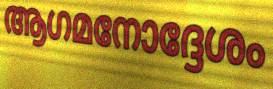
ആഗമനോദ്ദേശം